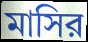
মাসির